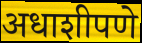
अधाशीपणे